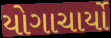
યોગાચાર્યો